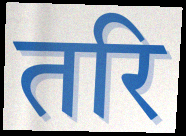
तरि